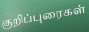
குறிப்புரைகள்